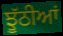
ਝੂੱਠੀਆਂ